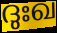
ദുഃഖ